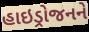
હાઇડ્રોજનને